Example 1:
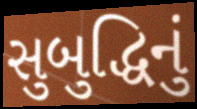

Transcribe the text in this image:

સુબુદ્ધિનું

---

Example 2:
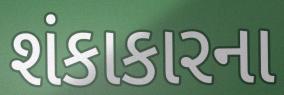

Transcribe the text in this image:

શંકાકારના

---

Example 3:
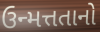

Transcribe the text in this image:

ઉન્મત્તતાનો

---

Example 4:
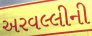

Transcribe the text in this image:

અરવલ્લીની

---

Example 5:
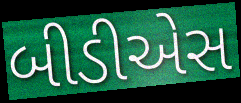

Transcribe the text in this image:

બીડીએસ